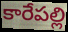
కారేపల్లి